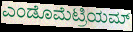
ಎಂಡೊಮೆಟ್ರಿಯಮ್